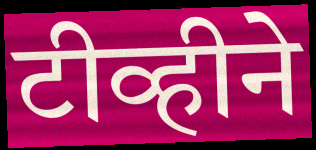
टीव्हीने